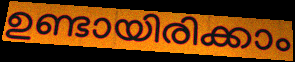
ഉണ്ടായിരിക്കാം